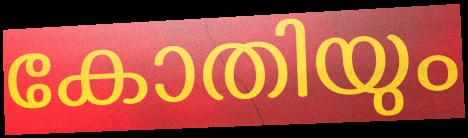
കോതിയും